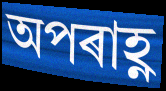
অপৰাহ্ণ